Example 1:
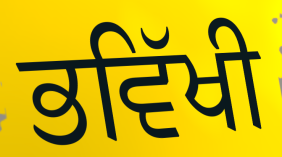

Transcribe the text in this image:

ਭਵਿੱਖੀ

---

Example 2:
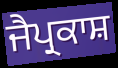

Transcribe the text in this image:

ਜੈਪ੍ਰਕਾਸ਼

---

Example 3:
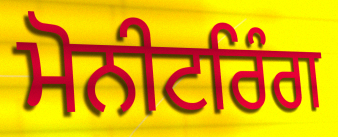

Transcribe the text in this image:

ਮੋਨੀਟਰਿੰਗ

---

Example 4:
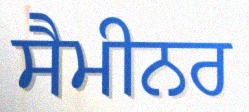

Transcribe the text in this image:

ਸੈਮੀਨਰ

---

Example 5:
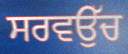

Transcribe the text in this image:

ਸਰਵਉੱਚ